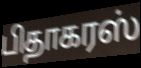
பிதாகரஸ்